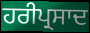
ਹਰੀਪ੍ਰਸਾਦ